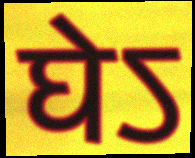
घेऽ